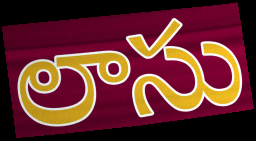
లాసు